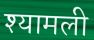
श्यामली